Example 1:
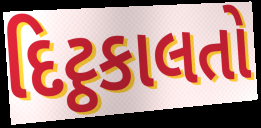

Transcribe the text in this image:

દિટ્ઠકાલતો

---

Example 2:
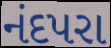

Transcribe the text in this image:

નંદપરા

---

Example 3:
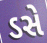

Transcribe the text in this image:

ડસે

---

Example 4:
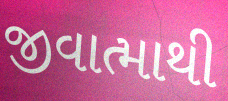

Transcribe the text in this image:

જીવાત્માથી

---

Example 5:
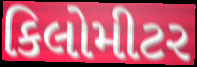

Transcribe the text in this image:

કિલોમીટર